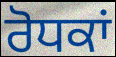
ਰੋਧਕਾਂ